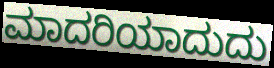
ಮಾದರಿಯಾದುದು